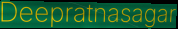
Deepratnasagar